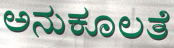
ಅನುಕೂಲತೆ